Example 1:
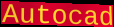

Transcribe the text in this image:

Autocad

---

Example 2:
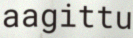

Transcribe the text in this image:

aagittu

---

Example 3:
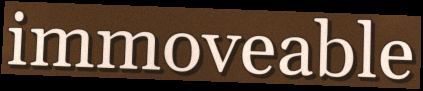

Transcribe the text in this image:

immoveable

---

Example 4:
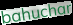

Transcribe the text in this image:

bahuchar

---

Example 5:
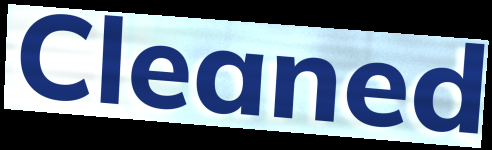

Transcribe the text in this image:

Cleaned